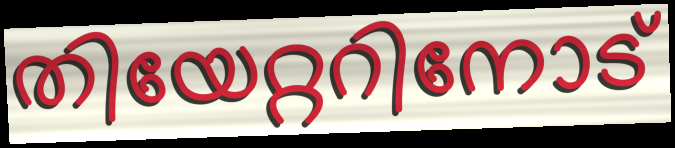
തിയേറ്ററിനോട്